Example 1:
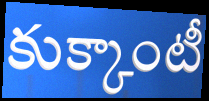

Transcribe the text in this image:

కుక్కాంటీ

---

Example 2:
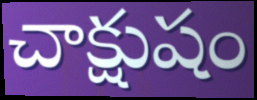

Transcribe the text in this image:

చాక్షుషం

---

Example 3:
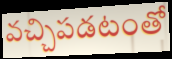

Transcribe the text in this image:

వచ్చిపడటంతో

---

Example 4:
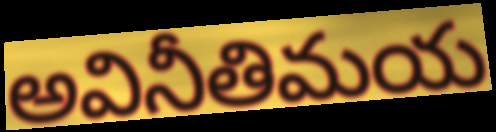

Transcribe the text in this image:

అవినీతిమయ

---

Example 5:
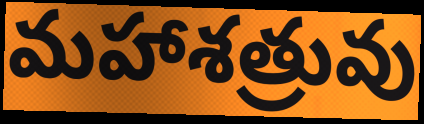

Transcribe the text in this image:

మహాశత్రువు